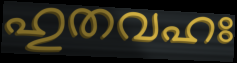
ഹുതവഹഃ